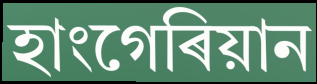
হাংগেৰিয়ান